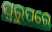
ସ୍ୱରୁପରେ